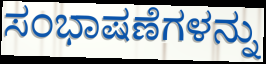
ಸಂಭಾಷಣೆಗಳನ್ನು